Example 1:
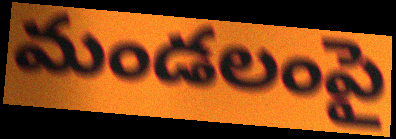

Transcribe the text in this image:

మండలంపై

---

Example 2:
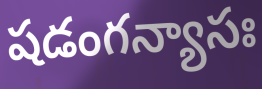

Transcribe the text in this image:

షడంగన్యాసః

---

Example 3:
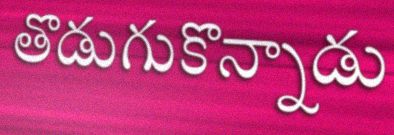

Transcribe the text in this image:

తొడుగుకొన్నాడు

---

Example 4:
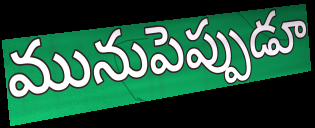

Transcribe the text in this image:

మునుపెప్పుడూ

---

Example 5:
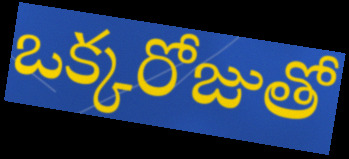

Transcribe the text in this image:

ఒక్కరోజుతో